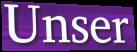
Unser